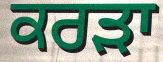
ਕਰੜਾ